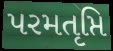
પરમતૃપ્તિ